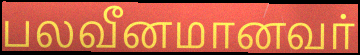
பலவீனமானவர்